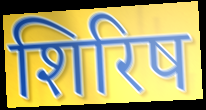
शिरिष